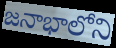
జనాభాలోని